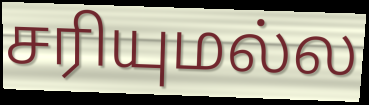
சரியுமல்ல